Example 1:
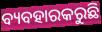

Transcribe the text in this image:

ବ୍ୟବହାରକରୁଛି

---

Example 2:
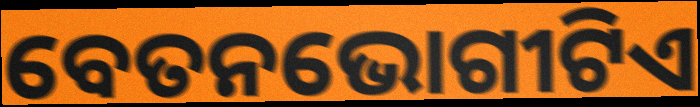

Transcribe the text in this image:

ବେତନଭୋଗୀଟିଏ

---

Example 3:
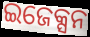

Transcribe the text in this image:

ଇଜେକ୍ସନ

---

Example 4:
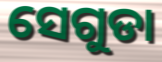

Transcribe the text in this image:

ସେଗୁଡା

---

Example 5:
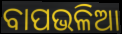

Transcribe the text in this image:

ବାପଭଳିଆ